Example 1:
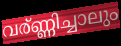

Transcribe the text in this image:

വര്ണ്ണിച്ചാലും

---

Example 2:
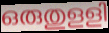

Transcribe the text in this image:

ഒരുതുളളി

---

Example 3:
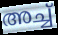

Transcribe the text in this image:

അച്ച്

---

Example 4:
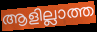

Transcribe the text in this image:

ആളില്ലാത്ത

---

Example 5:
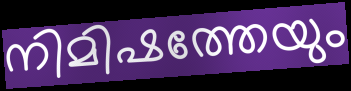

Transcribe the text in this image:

നിമിഷത്തേയും